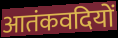
आतंकवदियों